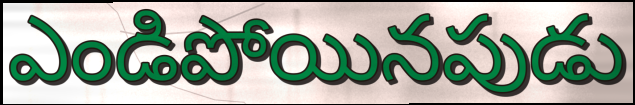
ఎండిపోయినపుడు